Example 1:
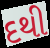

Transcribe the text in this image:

દથી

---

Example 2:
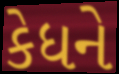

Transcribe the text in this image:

કેધને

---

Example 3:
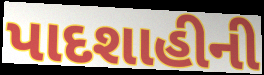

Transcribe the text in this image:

પાદશાહીની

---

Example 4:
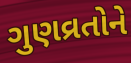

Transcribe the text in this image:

ગુણવ્રતોને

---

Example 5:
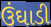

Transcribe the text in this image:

ઉંઘાડી